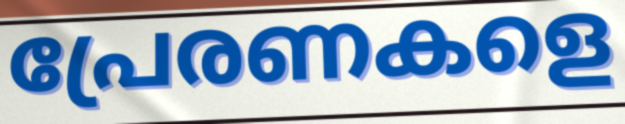
പ്രേരണകളെ